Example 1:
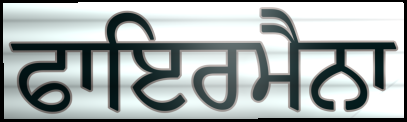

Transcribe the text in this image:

ਫਾਇਰਮੈਨਾ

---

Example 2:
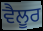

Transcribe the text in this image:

ਵੈਲੂਰ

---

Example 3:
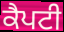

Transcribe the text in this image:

ਕੈਪਟੀ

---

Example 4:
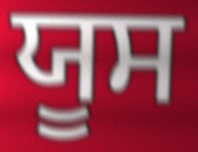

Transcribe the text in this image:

ਯੂਸ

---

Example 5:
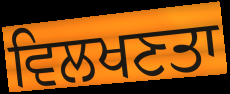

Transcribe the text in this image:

ਵਿਲਖਣਤਾ